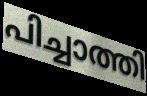
പിച്ചാത്തി